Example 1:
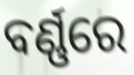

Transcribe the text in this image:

ବର୍ଣ୍ଣରେ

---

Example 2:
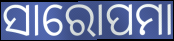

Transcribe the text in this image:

ସାରୋପମା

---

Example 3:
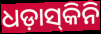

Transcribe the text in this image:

ଧଡ଼ାସ୍‌କିନି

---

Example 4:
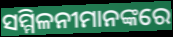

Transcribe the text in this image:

ସମ୍ମିଳନୀମାନଙ୍କରେ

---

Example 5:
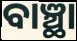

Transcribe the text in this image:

ବାଞ୍ଛା